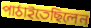
পাঠাইতেছিলেন